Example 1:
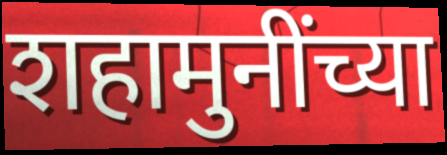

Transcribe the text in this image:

शहामुनींच्या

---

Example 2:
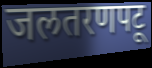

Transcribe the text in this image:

जलतरणपटू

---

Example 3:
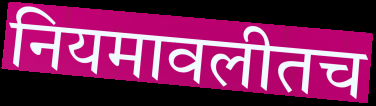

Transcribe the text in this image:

नियमावलीतच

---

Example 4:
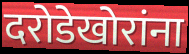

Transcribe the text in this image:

दरोडेखोरांना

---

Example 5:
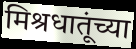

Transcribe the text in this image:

मिश्रधातूंच्या